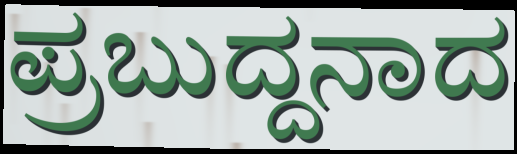
ಪ್ರಬುದ್ದನಾದ